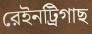
রেইনট্রিগাছ